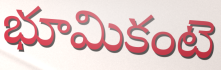
భూమికంటె